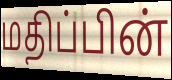
மதிப்பின்